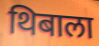
थिबाला